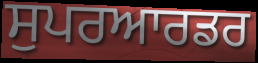
ਸੁਪਰਆਰਡਰ